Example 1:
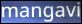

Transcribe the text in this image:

mangavi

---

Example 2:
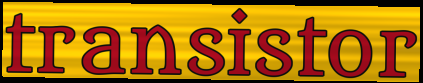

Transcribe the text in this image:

transistor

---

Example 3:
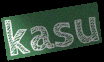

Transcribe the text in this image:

kasu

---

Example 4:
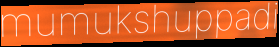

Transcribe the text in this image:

mumukshuppadi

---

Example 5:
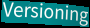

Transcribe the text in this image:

Versioning